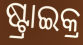
ଷ୍ଟ୍ରାଇକ୍ର